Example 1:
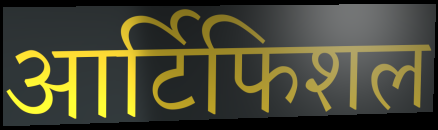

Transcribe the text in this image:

आर्टिफिशल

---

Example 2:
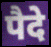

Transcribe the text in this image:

पैदे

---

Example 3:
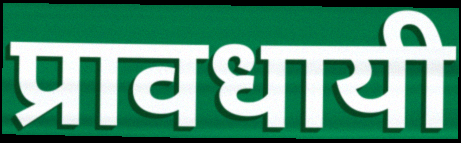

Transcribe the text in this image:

प्रावधायी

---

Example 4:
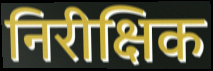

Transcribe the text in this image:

निरीक्षिक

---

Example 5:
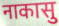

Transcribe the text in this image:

नाकासु